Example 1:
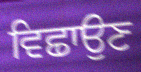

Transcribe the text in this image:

ਵਿਛਾਉਣ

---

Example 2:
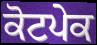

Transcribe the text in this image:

ਕੋਟਪੇਕ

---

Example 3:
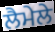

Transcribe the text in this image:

ਲੈਮੇਲੇ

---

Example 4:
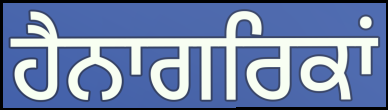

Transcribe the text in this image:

ਹੈਨਾਗਰਿਕਾਂ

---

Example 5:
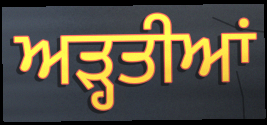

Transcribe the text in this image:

ਅੜ੍ਹਤੀਆਂ